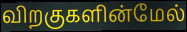
விறகுகளின்மேல்